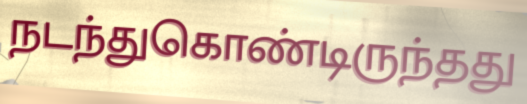
நடந்துகொண்டிருந்தது